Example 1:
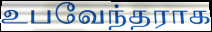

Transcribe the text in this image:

உபவேந்தராக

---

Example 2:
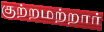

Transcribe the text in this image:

குற்றமற்றார்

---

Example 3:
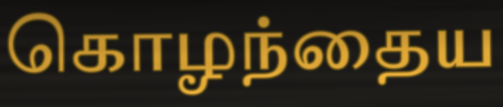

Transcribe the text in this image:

கொழந்தைய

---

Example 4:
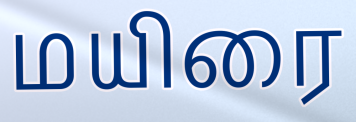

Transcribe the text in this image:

மயிரை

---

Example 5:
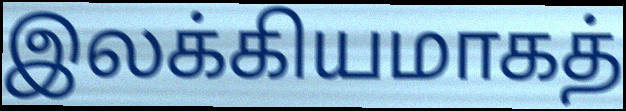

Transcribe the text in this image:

இலக்கியமாகத்